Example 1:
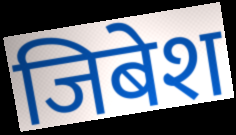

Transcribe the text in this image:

जिबेश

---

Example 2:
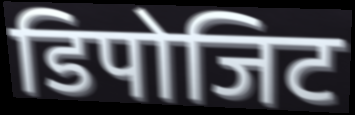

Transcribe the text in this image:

डिपोजिट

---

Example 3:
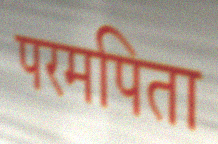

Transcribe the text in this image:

परमपिता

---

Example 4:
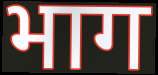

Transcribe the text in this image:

भाग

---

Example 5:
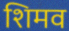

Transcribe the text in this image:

शिमव